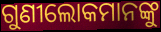
ଗୁଣୀଲୋକମାନଙ୍କୁ